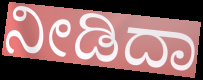
ನೀಡಿದಾ